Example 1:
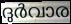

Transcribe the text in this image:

ദുർവാര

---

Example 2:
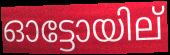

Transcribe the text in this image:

ഓട്ടോയില്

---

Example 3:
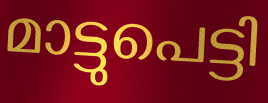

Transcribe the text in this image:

മാട്ടുപെട്ടി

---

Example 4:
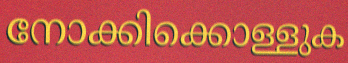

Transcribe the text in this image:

നോക്കിക്കൊള്ളുക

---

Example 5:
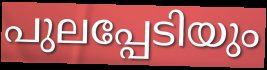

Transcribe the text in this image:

പുലപ്പേടിയും